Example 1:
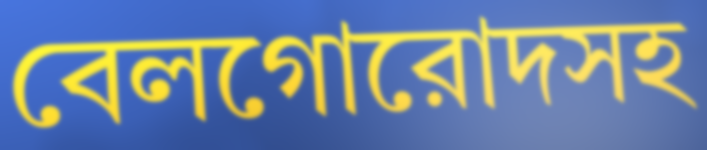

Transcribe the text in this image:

বেলগোরোদসহ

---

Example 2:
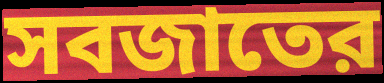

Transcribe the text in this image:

সবজাতের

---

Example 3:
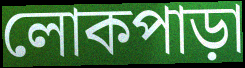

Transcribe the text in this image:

লোকপাড়া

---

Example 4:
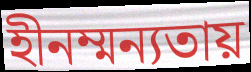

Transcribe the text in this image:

হীনম্মন্যতায়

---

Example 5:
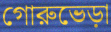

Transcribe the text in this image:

গোরুভেড়া